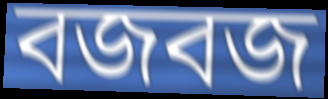
বজবজ